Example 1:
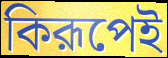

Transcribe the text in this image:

কিরূপেই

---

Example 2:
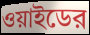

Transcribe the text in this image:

ওয়াইডের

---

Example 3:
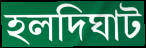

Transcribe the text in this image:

হলদিঘাট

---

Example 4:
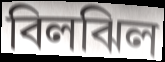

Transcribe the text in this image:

বিলঝিল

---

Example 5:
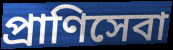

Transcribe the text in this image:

প্রাণিসেবা